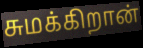
சுமக்கிறான்